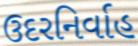
ઉદરનિર્વાહ